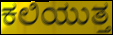
ಕಲಿಯುತ್ತ